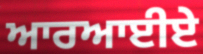
ਆਰਆਈਏ